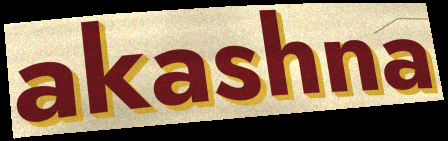
akashna